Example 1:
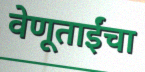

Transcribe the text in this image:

वेणूताईंचा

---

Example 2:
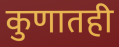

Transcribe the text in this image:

कुणातही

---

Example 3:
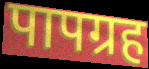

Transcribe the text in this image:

पापग्रह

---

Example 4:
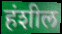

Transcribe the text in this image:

हंशील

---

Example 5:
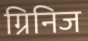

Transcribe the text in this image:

ग्रिनिज